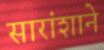
सारांशाने